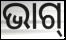
ଭାଗ୍